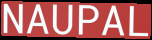
NAUPAL